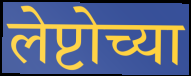
लेप्टोच्या